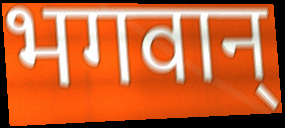
भगवान्